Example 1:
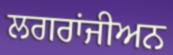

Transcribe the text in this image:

ਲਗਰਾਂਜੀਅਨ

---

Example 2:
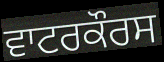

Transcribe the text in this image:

ਵਾਟਰਕੌਰਸ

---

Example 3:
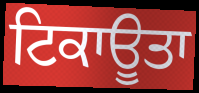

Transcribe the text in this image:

ਟਿਕਾਊਤਾ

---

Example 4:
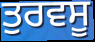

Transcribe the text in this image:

ਤੁਰਵਸੂ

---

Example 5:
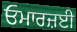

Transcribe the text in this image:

ਓਮਾਰਜ਼ਈ